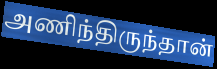
அணிந்திருந்தான்